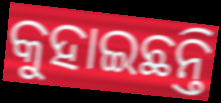
କୁହାଇଛନ୍ତି